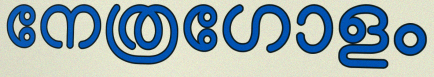
നേത്രഗോളം